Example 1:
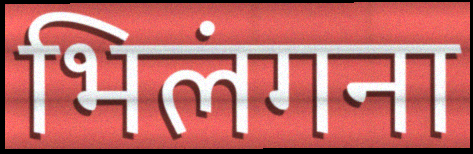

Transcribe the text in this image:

भिलंगना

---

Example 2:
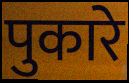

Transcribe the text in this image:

पुकारे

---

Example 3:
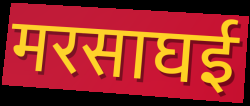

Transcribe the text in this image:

मरसाघई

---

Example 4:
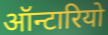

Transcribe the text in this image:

ऑन्टारियो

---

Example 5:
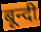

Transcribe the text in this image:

बून्दी